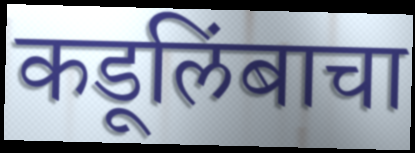
कडूलिंबाचा